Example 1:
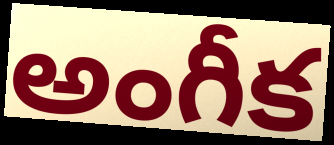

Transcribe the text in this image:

అంగీక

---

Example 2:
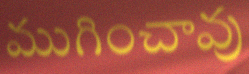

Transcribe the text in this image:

ముగించావు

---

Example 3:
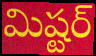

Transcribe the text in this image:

మిష్టర్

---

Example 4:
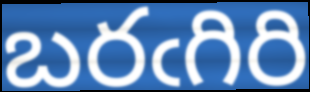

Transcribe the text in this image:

బరఁగిరి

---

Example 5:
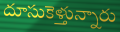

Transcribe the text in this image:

దూసుకెళ్తున్నారు